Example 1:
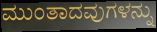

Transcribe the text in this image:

ಮುಂತಾದವುಗಳನ್ನು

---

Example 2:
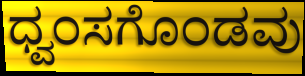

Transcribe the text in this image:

ಧ್ವಂಸಗೊಂಡವು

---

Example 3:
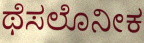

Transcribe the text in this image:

ಥೆಸಲೊನೀಕ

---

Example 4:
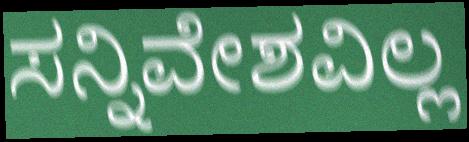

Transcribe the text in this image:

ಸನ್ನಿವೇಶವಿಲ್ಲ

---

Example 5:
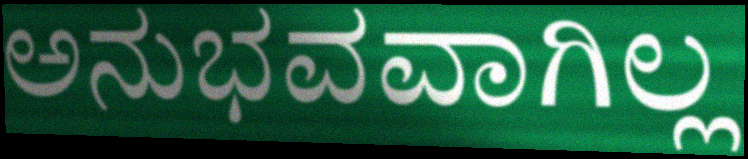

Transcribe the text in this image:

ಅನುಭವವಾಗಿಲ್ಲ